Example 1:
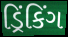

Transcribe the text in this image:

ડ્રિંકિંગ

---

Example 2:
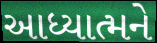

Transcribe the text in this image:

આધ્યાત્મને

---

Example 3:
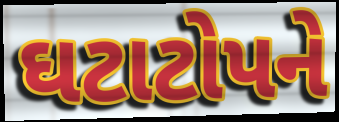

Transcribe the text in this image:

ઘટાટોપને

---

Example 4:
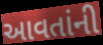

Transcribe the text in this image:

આવતાંની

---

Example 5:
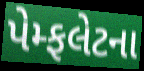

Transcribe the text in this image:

પેમ્ફલેટના